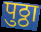
पुठ्ठा